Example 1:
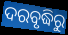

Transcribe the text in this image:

ଦରବୃଦ୍ଧିରୁ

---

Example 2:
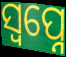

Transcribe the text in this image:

ସ୍ବପ୍ନେ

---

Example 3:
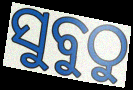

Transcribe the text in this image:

ସୁବୁଠୁ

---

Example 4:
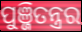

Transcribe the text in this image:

ପୁଞ୍ଜିତନ୍ତ୍ରର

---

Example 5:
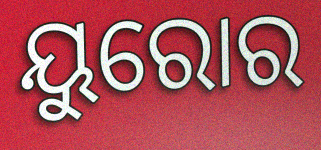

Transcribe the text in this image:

ୟୁରୋର